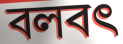
বলবৎ